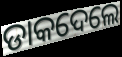
ଡାକଦେଲେ